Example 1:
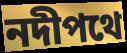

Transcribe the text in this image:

নদীপথে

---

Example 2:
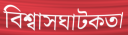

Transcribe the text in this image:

বিশ্বাসঘাটকতা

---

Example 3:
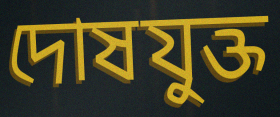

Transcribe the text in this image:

দোষযুক্ত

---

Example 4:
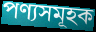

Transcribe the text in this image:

পণ্যসমূহক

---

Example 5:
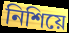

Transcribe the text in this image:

নিশিয়ে